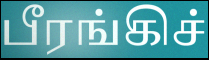
பீரங்கிச்